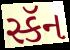
સ્કૅન